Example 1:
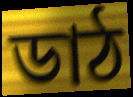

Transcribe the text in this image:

ডাঠ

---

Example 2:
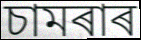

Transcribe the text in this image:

চামৰাৰ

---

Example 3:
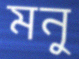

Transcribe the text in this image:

মনু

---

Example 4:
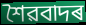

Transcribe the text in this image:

শৈৱবাদৰ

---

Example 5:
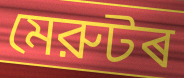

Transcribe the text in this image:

মেৰুটৰ